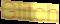
Glitch